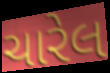
ચારેલ